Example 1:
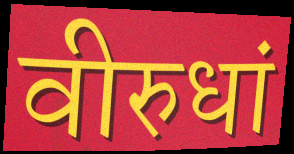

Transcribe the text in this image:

वीरुधां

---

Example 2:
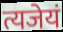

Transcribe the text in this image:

त्यजेयं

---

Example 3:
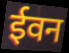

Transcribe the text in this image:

ईवन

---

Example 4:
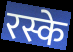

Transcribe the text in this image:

रस्के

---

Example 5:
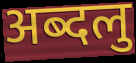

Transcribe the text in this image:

अब्दलु